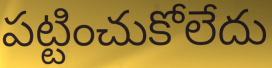
పట్టించుకోలేదు